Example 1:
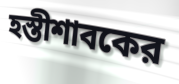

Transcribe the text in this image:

হস্তীশাবকের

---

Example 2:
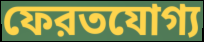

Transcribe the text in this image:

ফেরতযোগ্য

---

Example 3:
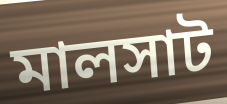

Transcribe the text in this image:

মালসাট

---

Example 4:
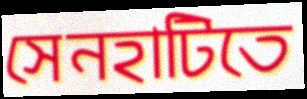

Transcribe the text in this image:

সেনহাটিতে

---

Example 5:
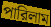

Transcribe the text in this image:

পারিলাম